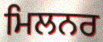
ਮਿਲਨਰ